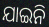
ଯାଇନି